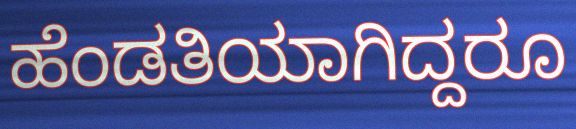
ಹೆಂಡತಿಯಾಗಿದ್ದರೂ